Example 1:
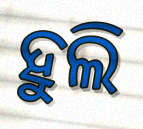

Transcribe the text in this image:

ହୁଲି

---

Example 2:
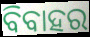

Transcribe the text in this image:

ବିବାହର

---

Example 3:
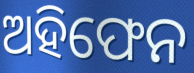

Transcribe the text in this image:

ଅହିଫେନ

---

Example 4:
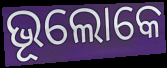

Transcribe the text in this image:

ଭୂଲୋକେ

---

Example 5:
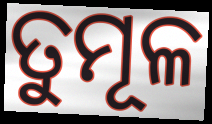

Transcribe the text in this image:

ତୁମୂଳ